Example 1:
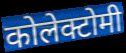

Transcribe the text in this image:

कोलेक्टोमी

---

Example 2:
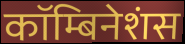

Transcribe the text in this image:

कॉम्बिनेशंस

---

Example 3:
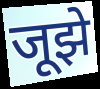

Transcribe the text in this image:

जूझे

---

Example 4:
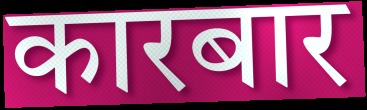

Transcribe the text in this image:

कारबार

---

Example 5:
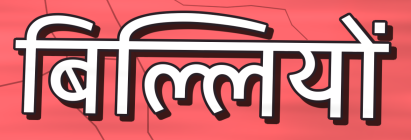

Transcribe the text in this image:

बिल्लियों